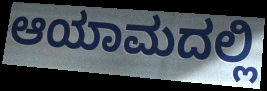
ಆಯಾಮದಲ್ಲಿ